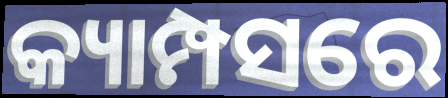
କ୍ୟାମ୍ପସରେ